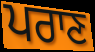
ਪਰਾਣ